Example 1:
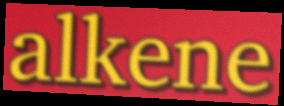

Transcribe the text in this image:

alkene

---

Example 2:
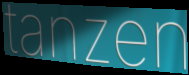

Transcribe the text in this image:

tanzen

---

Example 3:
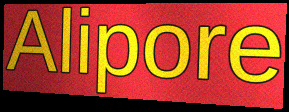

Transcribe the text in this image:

Alipore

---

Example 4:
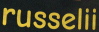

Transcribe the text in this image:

russelii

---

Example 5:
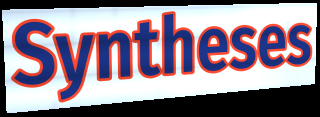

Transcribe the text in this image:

Syntheses